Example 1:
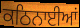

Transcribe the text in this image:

ਕਠਿਨਾਈਆਂ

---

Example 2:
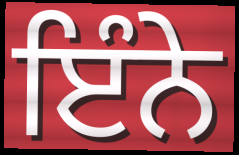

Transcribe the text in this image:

ਇੰਨੇ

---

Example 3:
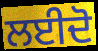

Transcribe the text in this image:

ਲਈਦੋ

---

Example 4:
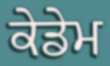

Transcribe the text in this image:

ਕੇਡੇਮ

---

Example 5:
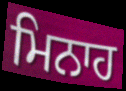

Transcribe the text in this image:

ਮਿਨਾਹ